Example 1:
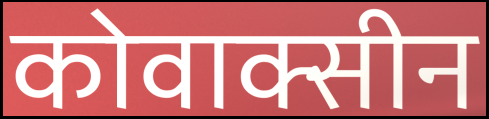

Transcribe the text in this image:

कोवाक्सीन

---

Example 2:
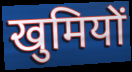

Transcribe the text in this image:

खुमियों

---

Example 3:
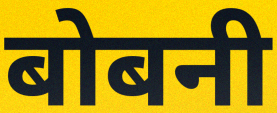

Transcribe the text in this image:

बोबनी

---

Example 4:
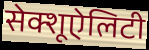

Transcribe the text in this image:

सेक्शूऐलिटी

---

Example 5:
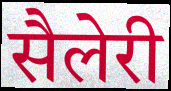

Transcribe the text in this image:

सैलेरी